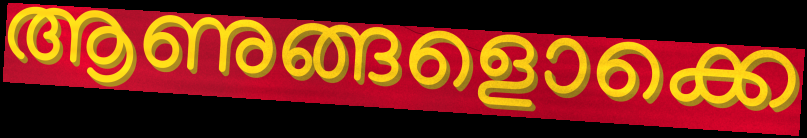
ആണുങ്ങളൊക്കെ